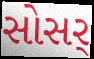
સોસર્